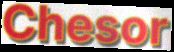
Chesor